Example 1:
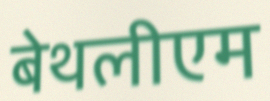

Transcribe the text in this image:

बेथलीएम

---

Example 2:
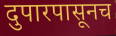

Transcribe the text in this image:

दुपारपासूनच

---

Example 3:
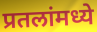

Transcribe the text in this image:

प्रतलांमध्ये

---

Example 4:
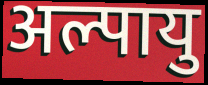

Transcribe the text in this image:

अल्पायु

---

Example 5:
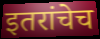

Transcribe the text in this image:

इतरांचेच